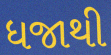
ધજાથી